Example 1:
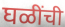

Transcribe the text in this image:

घळींची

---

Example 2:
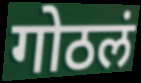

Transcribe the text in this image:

गोठलं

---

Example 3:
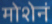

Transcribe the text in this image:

मोशेनं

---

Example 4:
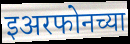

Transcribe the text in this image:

इअरफोनच्या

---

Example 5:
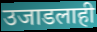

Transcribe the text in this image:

उजाडलाही